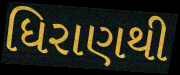
ધિરાણથી